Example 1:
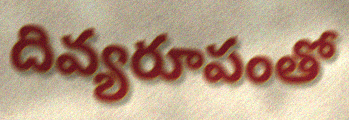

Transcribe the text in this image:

దివ్యరూపంతో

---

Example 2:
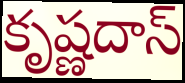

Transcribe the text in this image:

కృష్ణదాస్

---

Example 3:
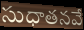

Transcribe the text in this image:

సుధాతనవే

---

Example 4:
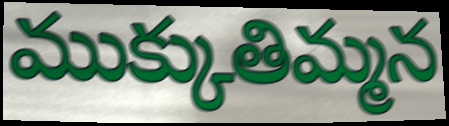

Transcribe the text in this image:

ముక్కుతిమ్మన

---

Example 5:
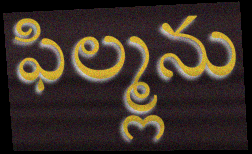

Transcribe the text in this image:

ఫిల్మ్లను